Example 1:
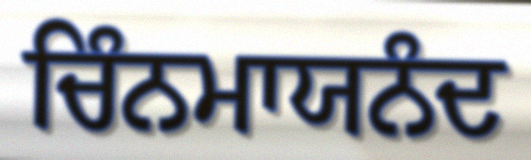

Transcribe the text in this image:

ਚਿੰਨਮਾਯਨੰਦ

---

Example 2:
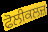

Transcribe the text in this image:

ਫੋਲੀਕਲਜ਼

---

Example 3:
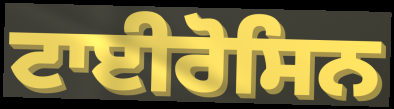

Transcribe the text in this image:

ਟਾਈਰੋਸਿਨ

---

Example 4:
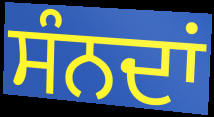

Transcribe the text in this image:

ਸੰਨਦਾਂ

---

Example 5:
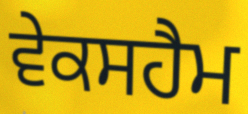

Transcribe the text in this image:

ਵੇਕਸਹੈਮ